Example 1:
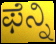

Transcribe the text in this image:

ಫೆನ್ನಿ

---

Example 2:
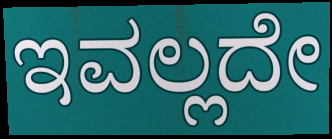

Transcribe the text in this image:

ಇವಲ್ಲದೇ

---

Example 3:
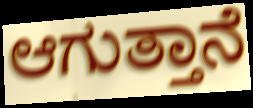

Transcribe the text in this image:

ಆಗುತ್ತಾನೆ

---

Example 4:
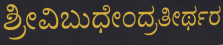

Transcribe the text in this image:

ಶ್ರೀವಿಬುಧೇಂದ್ರತೀರ್ಥರ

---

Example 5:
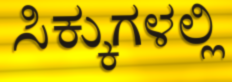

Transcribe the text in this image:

ಸಿಕ್ಕುಗಳಲ್ಲಿ